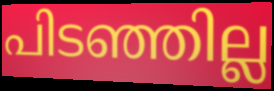
പിടഞ്ഞില്ല